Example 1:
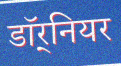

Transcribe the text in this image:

डॉर्नियर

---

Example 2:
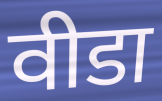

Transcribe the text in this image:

वीडा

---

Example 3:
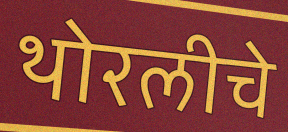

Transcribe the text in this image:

थोरलीचे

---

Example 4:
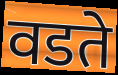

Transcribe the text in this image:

वडते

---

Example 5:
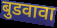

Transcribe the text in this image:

बुडवावा